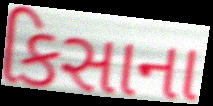
કિસાના